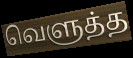
வெளுத்த